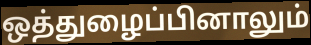
ஒத்துழைப்பினாலும்